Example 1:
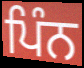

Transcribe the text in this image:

ਪਿੰਨ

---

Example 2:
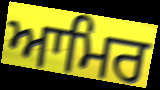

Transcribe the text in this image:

ਆਮਿਰ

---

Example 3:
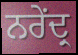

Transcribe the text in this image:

ਨਰੇਂਦ੍ਰ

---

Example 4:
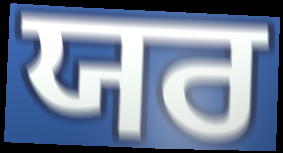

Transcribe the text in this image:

ਯਰ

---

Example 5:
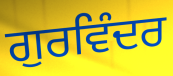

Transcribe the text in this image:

ਗੁਰਵਿੰਦਰ